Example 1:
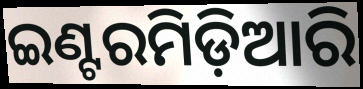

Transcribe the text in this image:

ଇଣ୍ଟରମିଡ଼ିଆରି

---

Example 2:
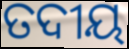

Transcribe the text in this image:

ତଦୀୟ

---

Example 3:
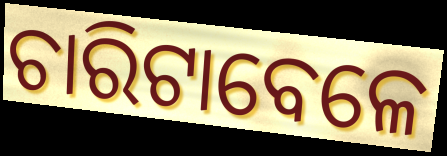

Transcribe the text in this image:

ଚାରିଟାବେଳେ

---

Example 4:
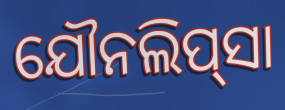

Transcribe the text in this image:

ଯୌନଲିପ୍‌ସା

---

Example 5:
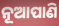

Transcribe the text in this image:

ନୂଆପାଣି